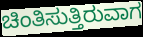
ಚಿಂತಿಸುತ್ತಿರುವಾಗ